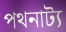
পথনাট্য